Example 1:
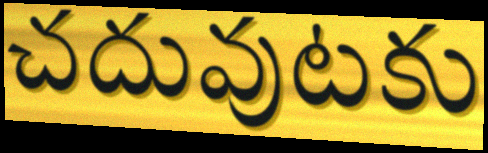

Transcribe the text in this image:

చదువుటకు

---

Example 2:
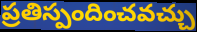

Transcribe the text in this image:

ప్రతిస్పందించవచ్చు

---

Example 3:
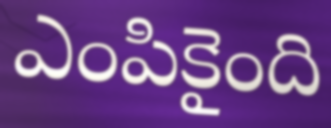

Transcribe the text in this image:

ఎంపికైంది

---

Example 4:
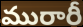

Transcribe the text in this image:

మురారీ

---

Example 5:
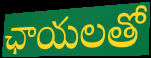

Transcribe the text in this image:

ఛాయలతో